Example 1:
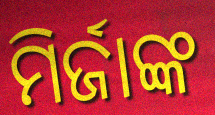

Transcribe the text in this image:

ମିର୍ଜାଙ୍କ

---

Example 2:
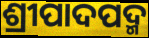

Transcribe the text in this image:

ଶ୍ରୀପାଦପଦ୍ମ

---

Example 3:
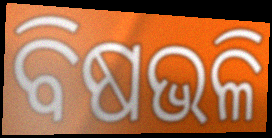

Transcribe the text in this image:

ବିଷଭଳି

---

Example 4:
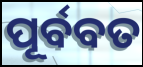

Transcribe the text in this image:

ପୂର୍ବବତ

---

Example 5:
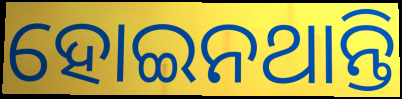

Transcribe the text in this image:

ହୋଇନଥାନ୍ତି